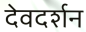
देवदर्शन